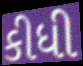
કીધી